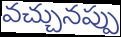
వచ్చునప్పు